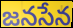
జనసేన